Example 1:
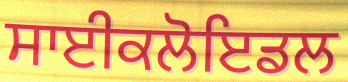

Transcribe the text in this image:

ਸਾਈਕਲੋਇਡਲ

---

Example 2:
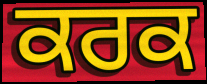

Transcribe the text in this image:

ਕਰਕ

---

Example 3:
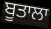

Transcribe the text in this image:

ਬੂਤਾਲਾ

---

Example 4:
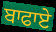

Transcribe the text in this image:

ਬਾਫਾਏ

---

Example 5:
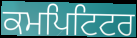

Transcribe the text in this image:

ਕਮਪਿਟਿਟਰ